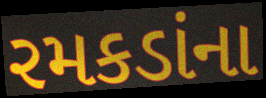
રમકડાંના